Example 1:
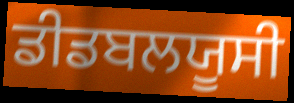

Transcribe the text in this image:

ਡੀਡਬਲਯੂਸੀ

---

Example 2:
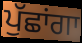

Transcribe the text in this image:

ਪੁੱਛਾਂਗਾ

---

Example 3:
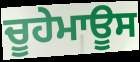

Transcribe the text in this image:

ਚੂਹੇਮਾਊਸ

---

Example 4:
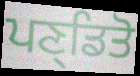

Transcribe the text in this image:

ਪਣ੍ਡਿਤੋ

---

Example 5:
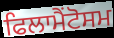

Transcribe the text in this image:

ਫਿਲਾਮੈਂਟੋਸਮ